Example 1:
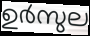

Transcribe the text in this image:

ഉർസുല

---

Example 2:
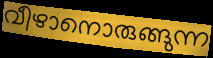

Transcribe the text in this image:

വീഴാനൊരുങ്ങുന്ന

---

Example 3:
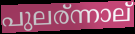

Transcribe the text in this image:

പുലര്ന്നാല്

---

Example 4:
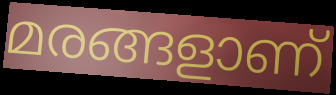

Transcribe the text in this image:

മരങ്ങളാണ്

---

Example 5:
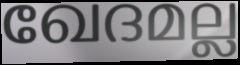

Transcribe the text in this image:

ഖേദമല്ല